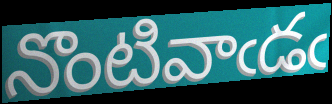
నొంటివాఁడఁ